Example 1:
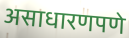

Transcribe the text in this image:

असाधारणपणे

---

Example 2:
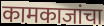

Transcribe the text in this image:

कामकाजांचा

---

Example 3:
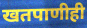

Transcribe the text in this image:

खतपाणीही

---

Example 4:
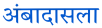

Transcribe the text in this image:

अंबादासला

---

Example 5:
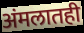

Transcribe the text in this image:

अंमलातही